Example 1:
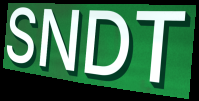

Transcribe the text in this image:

SNDT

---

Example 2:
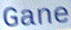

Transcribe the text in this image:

Gane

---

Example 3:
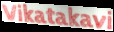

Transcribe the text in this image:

Vikatakavi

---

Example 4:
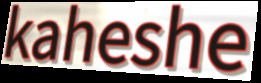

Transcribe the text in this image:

kaheshe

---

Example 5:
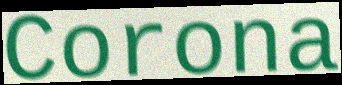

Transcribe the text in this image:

Corona